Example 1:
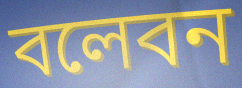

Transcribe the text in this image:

বলেবন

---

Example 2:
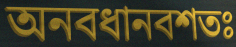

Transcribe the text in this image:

অনবধানবশতঃ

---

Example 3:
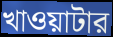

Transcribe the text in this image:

খাওয়াটার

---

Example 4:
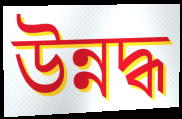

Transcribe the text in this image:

উন্নদ্ধ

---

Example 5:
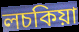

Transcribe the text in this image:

লচকিয়া